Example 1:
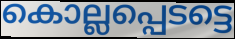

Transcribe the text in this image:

കൊല്ലപ്പെടട്ടെ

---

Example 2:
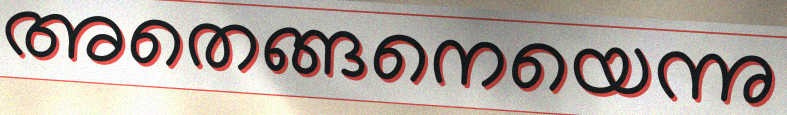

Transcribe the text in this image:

അതെങ്ങനെയെന്നു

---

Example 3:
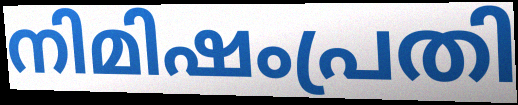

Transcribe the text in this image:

നിമിഷംപ്രതി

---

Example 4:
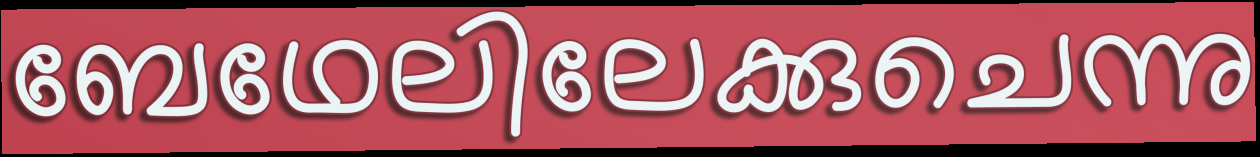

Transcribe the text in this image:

ബേഥേലിലേക്കുചെന്നു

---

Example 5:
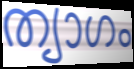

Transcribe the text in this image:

ത്യാഗം